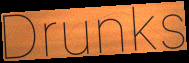
Drunks